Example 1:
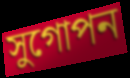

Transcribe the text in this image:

সুগোপন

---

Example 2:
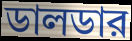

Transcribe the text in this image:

ডালডার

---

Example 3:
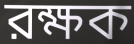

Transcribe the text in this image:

রক্ষক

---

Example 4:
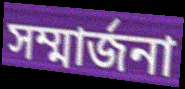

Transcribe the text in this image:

সম্মার্জনা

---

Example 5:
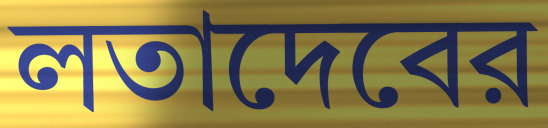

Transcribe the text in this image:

লতাদেবের